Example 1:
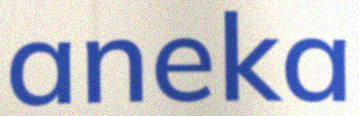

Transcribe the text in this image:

aneka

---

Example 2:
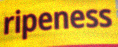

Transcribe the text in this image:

ripeness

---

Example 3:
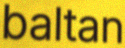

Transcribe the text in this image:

baltan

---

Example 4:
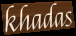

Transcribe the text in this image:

khadas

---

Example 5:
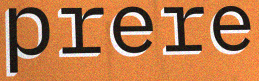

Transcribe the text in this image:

prere